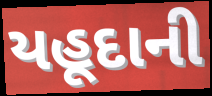
યહૂદાની